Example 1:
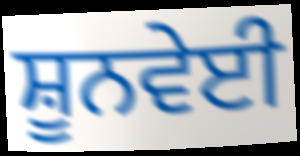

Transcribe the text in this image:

ਸ਼ੂਨਵੇਈ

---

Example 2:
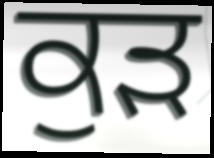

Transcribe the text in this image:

ਕੁੜ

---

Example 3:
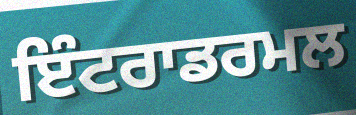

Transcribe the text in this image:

ਇੰਟਰਾਡਰਮਲ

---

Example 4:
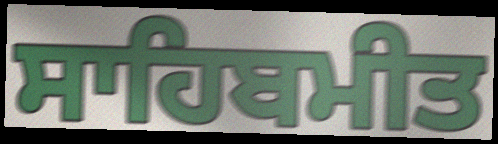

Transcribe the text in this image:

ਸਾਹਿਬਮੀਤ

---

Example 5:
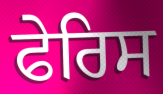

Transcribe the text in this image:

ਫੇਰਿਸ